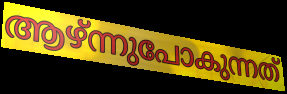
ആഴ്ന്നുപോകുന്നത്